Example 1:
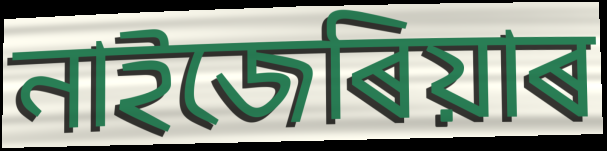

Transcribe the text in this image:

নাইজেৰিয়াৰ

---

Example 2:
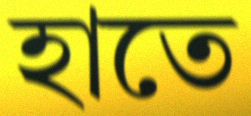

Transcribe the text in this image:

হাতে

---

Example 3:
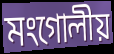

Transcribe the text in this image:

মংগোলীয়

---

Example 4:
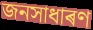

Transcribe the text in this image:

জনসাধাৰণ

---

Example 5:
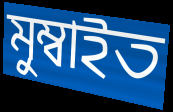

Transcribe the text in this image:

মুম্বাইত